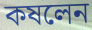
কষলেন